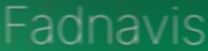
Fadnavis